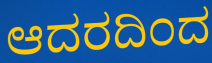
ಆದರದಿಂದ